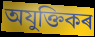
অযুক্তিকৰ